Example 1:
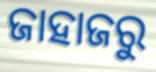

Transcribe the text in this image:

ଜାହାଜରୁ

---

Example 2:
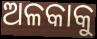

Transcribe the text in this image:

ଅଳକାକୁ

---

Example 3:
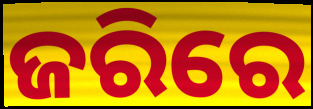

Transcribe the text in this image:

ଜରିରେ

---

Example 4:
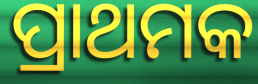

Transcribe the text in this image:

ପ୍ରାଥମକ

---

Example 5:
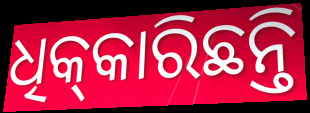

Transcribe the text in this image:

ଧିକ୍‌କାରିଛନ୍ତି